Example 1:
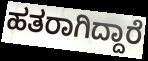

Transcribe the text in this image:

ಹತರಾಗಿದ್ದಾರೆ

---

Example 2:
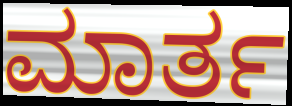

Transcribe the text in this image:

ಮಾರ್ತ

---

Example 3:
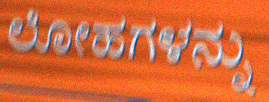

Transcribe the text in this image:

ಲೋಹಗಳನ್ನು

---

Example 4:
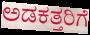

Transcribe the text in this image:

ಅಡಕತ್ತರಿಗೆ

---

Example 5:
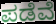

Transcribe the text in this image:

ಪಡೆವೆ